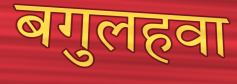
बगुलहवा